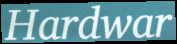
Hardwar